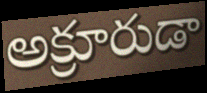
అక్రూరుడా